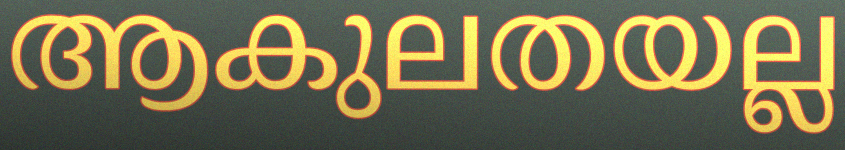
ആകുലതയല്ല